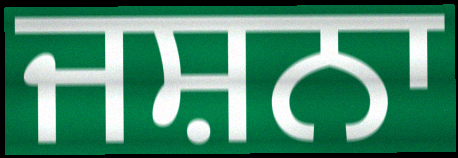
ਜਸ਼ਨਾ